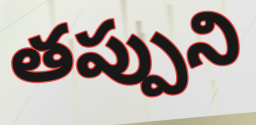
తప్పుని